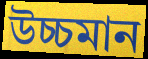
উচ্চমান